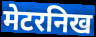
मेटरनिख